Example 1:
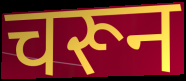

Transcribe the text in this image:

चरून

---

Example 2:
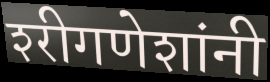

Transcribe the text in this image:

श्रीगणेशांनी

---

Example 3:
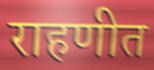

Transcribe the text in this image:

राहणीत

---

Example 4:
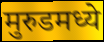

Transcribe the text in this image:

मुरुडमध्ये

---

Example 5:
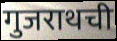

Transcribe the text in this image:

गुजराथची